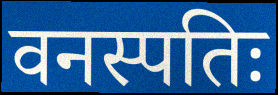
वनस्पतिः